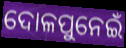
ଦୋଳପୁନେଇଁ